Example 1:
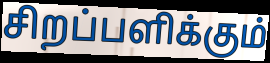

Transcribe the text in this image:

சிறப்பளிக்கும்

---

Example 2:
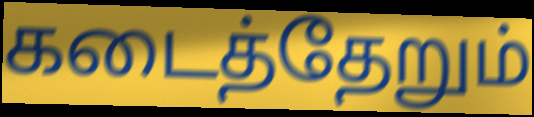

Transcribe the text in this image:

கடைத்தேறும்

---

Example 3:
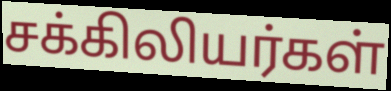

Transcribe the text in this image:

சக்கிலியர்கள்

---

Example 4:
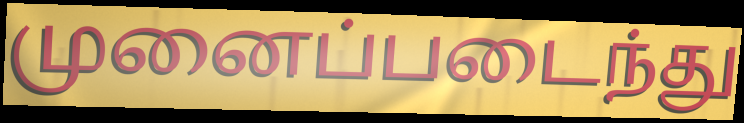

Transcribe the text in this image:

முனைப்படைந்து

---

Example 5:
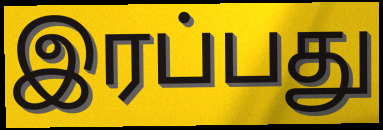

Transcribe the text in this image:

இரப்பது